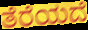
ತೆರೆಯದೆ